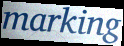
marking